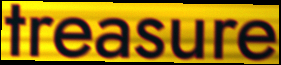
treasure